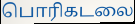
பொரிகடலை